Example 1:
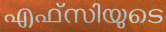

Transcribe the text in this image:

എഫ്സിയുടെ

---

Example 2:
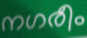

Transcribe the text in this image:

നഗരീം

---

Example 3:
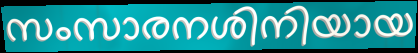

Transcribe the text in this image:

സംസാരനശിനിയായ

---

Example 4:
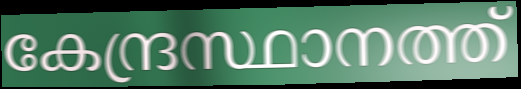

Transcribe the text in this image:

കേന്ദ്രസ്ഥാനത്ത്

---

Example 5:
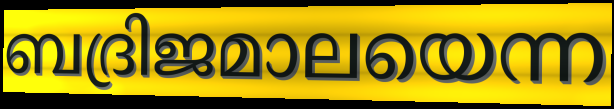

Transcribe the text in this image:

ബദ്രിജമാലയെന്ന